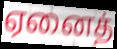
ஏனைத்